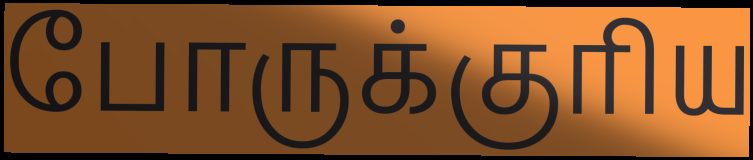
போருக்குரிய